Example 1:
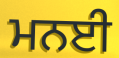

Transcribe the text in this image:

ਮਨਈ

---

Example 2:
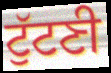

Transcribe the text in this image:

ਟੁੱਟਣੀ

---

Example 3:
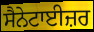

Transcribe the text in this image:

ਸੈਨੇਟਾਈਜ਼ਰ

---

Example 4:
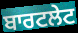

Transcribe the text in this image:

ਬਾਰਟਲੇਟ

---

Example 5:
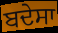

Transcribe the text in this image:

ਬਦੇਸਾ